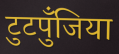
टुटपुँजिया